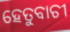
ହେତୁବାଚୀ